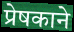
प्रेषकाने